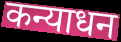
कन्याधन